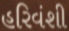
હરિવંશી